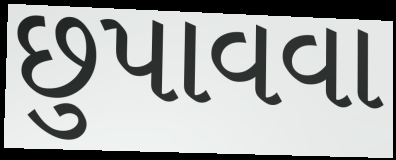
છુપાવવા